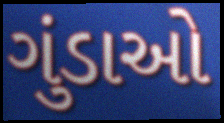
ગુંડાઓ